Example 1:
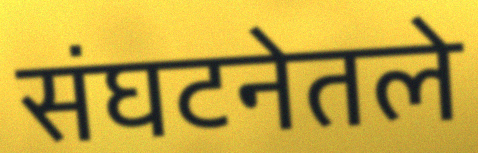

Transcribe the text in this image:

संघटनेतले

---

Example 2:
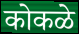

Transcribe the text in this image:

कोकळे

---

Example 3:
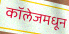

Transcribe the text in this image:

कॉलेजमधून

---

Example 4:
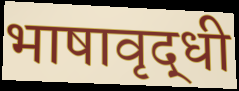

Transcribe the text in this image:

भाषावृद्धी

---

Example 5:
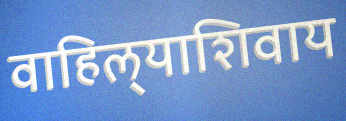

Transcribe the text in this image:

वाहिल्याशिवाय